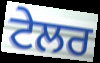
ਟੇਲਰ